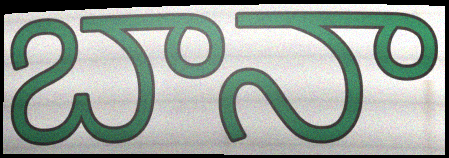
బానా